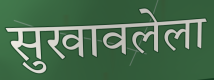
सुखावलेला